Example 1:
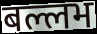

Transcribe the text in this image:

बल्लभ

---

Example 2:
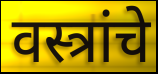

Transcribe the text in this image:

वस्त्रांचे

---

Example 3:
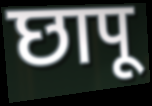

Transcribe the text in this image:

छापू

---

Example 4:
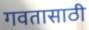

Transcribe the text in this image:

गवतासाठी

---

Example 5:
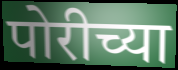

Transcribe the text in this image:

पोरीच्या